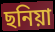
ছনিয়া